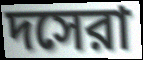
দসেরা